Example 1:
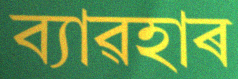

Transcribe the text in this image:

ব্যাৱহাৰ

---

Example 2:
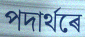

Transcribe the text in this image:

পদাৰ্থৰে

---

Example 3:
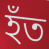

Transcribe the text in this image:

হঁত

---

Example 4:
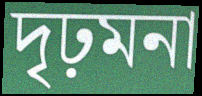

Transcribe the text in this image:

দৃঢ়মনা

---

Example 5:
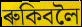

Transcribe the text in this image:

ৰুকিবলৈ